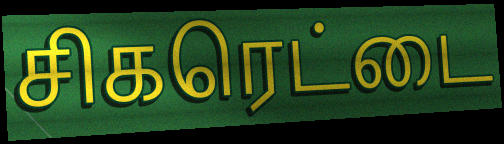
சிகரெட்டை